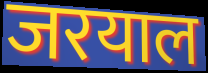
जरयाल